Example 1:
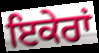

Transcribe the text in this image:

ਇਕੇਰਾਂ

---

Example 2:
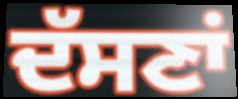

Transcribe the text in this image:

ਦੱਸਣਾਂ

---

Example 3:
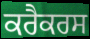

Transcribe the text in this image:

ਕਰੈਕਰਸ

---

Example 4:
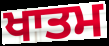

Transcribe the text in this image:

ਖਾਤਮ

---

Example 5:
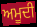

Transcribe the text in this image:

ਅਮੂਦੀ